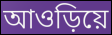
আওড়িয়ে